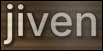
jiven